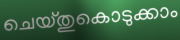
ചെയ്തുകൊടുക്കാം